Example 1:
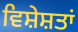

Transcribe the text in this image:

ਵਿਸ਼ੇਸ਼ਤਾਂ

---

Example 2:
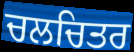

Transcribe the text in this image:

ਚਲਚਿਤਰ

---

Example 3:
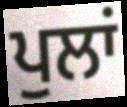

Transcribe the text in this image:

ਪੁਲਾਂ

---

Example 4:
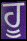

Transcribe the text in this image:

ਹੂ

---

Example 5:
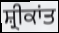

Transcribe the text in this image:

ਸ਼੍ਰੀਕਾਂਤ